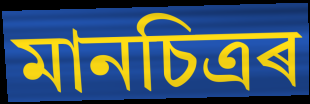
মানচিত্ৰৰ